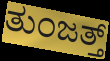
ತುಂಜತ್ತ್